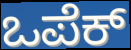
ಒಪೆಕ್